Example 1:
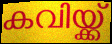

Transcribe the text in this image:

കവിയ്ക്ക്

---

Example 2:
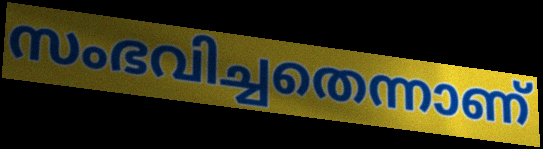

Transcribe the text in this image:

സംഭവിച്ചതെന്നാണ്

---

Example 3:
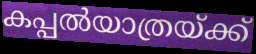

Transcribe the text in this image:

കപ്പൽയാത്രയ്ക്ക്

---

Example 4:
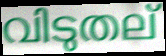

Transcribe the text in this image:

വിടുതല്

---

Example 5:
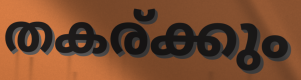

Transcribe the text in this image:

തകര്ക്കും